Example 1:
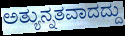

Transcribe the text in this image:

ಅತ್ಯುನ್ನತವಾದದ್ದು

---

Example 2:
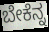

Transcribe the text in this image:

ಬೇಕೆನ್ನ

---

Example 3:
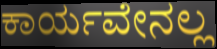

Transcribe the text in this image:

ಕಾರ್ಯವೇನಲ್ಲ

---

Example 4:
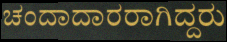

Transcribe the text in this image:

ಚಂದಾದಾರರಾಗಿದ್ದರು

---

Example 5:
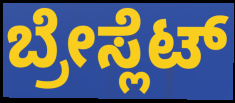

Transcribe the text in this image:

ಬ್ರೇಸ್ಲೆಟ್